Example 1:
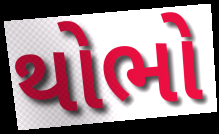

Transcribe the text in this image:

થોભો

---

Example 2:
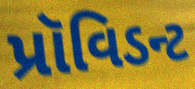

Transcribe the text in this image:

પ્રૉવિડન્ટ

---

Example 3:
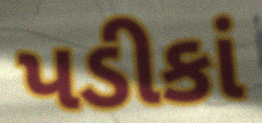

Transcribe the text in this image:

પડીકાં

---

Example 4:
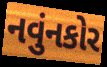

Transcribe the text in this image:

નવુંનકોર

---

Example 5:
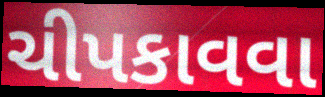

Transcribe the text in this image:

ચીપકાવવા